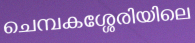
ചെമ്പകശ്ശേരിയിലെ